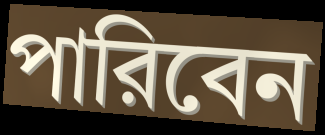
পারিবেন